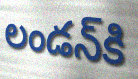
లండన్‌కి